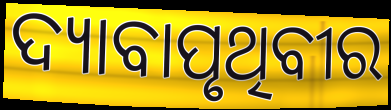
ଦ୍ୟାବାପୃଥିବୀର